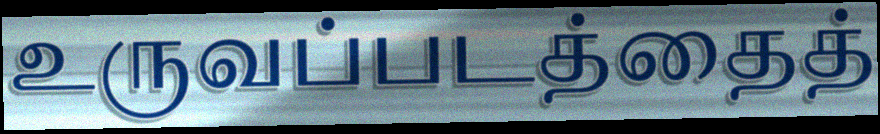
உருவப்படத்தைத்